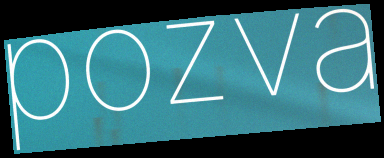
pozva